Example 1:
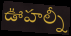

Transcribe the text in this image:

ఊహల్నీ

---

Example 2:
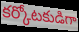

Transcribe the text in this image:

కర్కోటకుడిగా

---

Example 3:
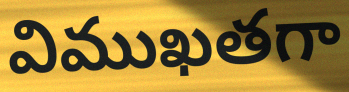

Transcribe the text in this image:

విముఖతగా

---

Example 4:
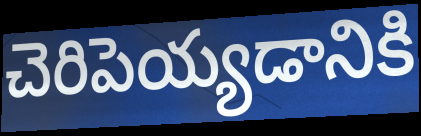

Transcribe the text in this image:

చెరిపెయ్యడానికి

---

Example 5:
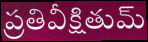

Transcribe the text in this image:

ప్రతివీక్షితుమ్